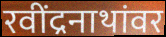
रवींद्रनाथांवर